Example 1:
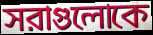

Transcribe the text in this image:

সরাগুলোকে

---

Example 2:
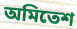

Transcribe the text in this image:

অমিতেশ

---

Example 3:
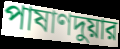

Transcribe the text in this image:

পাষাণদুয়ার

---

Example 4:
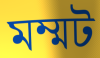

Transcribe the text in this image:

মম্মট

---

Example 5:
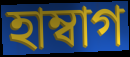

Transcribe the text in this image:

হাম্বাগ